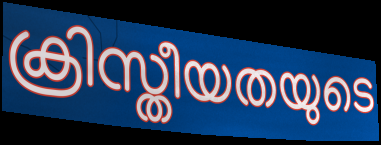
ക്രിസ്തീയതയുടെ